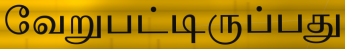
வேறுபட்டிருப்பது